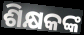
ଶିକ୍ଷକଙ୍କ